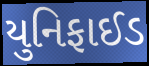
યુનિફાઈડ